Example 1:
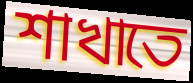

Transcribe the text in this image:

শাখাতে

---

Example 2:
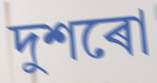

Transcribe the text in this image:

দুশৰো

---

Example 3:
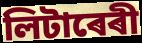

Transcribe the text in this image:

লিটাৰেৰী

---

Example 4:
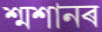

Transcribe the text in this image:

শ্মশানৰ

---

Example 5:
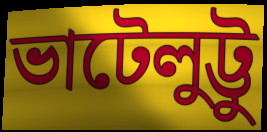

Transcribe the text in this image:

ভাটেলুট্টু